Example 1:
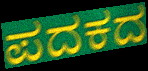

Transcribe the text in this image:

ಪದಕದ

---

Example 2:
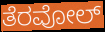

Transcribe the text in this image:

ತೆರವೋಲ್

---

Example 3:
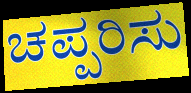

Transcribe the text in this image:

ಚಪ್ಪರಿಸು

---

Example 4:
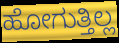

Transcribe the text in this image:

ಹೋಗುತ್ತಿಲ್ಲ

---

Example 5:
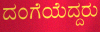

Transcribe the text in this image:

ದಂಗೆಯೆದ್ದರು